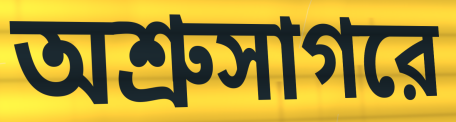
অশ্রুসাগরে